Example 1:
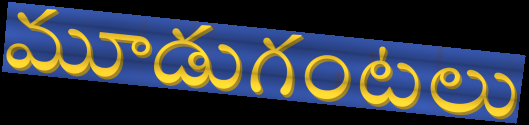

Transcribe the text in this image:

మూడుగంటలు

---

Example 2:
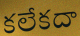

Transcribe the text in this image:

కలేకదా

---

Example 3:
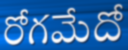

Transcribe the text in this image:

రోగమేదో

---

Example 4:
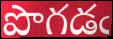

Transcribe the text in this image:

పొగడఁ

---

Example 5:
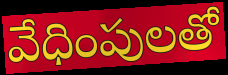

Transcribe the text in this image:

వేధింపులతో